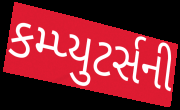
કમ્પ્યુટર્સની